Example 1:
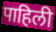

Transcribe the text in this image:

पाहिली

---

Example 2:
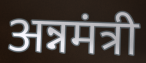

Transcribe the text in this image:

अन्नमंत्री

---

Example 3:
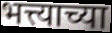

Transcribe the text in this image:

भत्त्याच्या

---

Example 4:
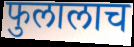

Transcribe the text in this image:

फुलालाच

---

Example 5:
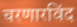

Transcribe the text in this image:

चरणारविंद